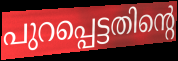
പുറപ്പെട്ടതിന്റെ